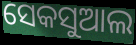
ସେକସୁଆଲ